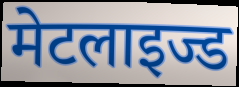
मेटलाइज्ड